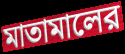
মাতামালের